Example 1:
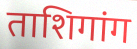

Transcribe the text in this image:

ताशिगांग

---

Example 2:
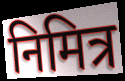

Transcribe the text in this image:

निमित्र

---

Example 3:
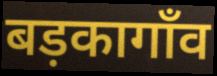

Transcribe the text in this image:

बड़कागाँव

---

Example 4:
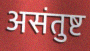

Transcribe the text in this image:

असंतुष्ट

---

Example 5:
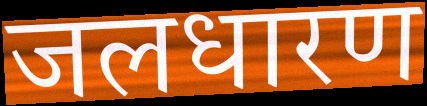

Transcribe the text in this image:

जलधारण